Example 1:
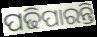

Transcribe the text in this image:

ପଢିପାରନ୍ତି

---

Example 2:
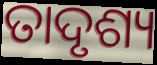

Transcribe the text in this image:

ତାଦୃଶ୍ୟ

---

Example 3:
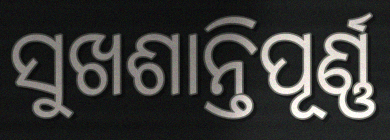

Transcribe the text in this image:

ସୁଖଶାନ୍ତିପୂର୍ଣ୍ଣ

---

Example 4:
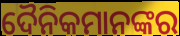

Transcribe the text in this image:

ଦୈନିକମାନଙ୍କର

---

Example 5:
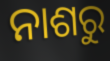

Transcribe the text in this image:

ନାଶରୁ